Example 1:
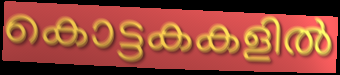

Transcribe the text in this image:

കൊട്ടകകളിൽ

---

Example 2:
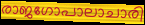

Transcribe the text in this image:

രാജഗോപാലാചാരി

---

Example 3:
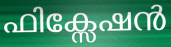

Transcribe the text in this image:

ഫിക്സേഷൻ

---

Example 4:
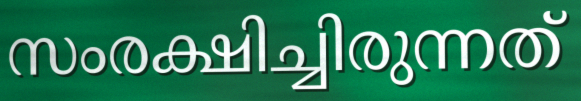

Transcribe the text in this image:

സംരക്ഷിച്ചിരുന്നത്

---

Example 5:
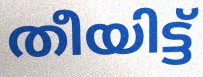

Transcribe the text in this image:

തീയിട്ട്